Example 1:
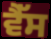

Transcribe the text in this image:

ਵੈੱਸ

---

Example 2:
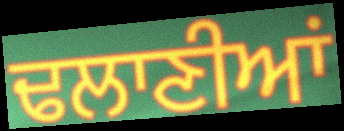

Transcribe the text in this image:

ਢਲਾਣੀਆਂ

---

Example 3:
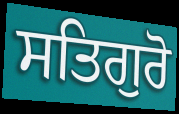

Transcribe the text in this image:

ਸਤਿਗੁਰੋ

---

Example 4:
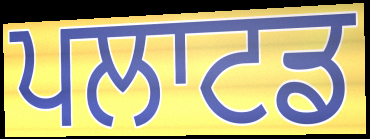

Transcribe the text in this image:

ਪਲਾਟਡ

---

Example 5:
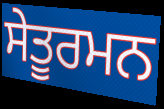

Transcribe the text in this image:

ਸੇਤੂਰਮਨ